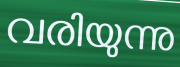
വരിയുന്നു